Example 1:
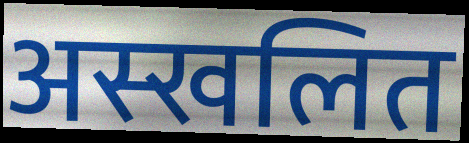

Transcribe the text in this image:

अस्खलित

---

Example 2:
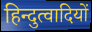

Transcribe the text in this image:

हिन्दुत्वादियों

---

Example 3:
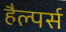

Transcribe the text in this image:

हैल्पर्स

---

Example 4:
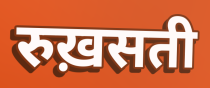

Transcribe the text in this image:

रुख़सती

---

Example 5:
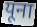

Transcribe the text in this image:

यूना